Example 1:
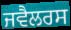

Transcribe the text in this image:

ਜਵੈਲਰਸ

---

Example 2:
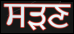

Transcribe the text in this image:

ਸੜਣ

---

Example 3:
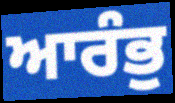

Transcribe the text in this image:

ਆਰੰਭੁ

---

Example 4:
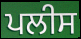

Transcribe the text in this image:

ਪਲੀਸ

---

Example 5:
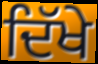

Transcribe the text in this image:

ਦਿੱਖੇ